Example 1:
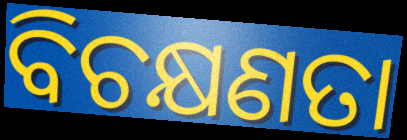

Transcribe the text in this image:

ବିଚକ୍ଷଣତା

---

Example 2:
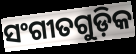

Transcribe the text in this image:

ସଂଗୀତଗୁଡ଼ିକ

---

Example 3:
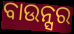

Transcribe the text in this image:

ବାଉନ୍ସର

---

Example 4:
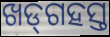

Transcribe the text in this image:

ଖଡ୍‌ଗହସ୍ତ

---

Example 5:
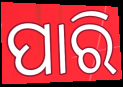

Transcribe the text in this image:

ପାରି